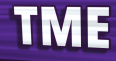
TME